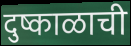
दुष्काळाची